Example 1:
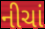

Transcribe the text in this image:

નીચાં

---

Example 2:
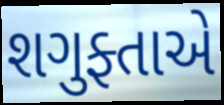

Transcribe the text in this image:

શગુફ્તાએ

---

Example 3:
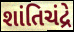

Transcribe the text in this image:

શાંતિચંદ્રે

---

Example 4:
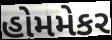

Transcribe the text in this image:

હોમમેકર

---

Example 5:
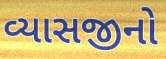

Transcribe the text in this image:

વ્યાસજીનો